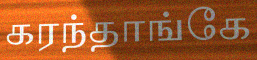
கரந்தாங்கே